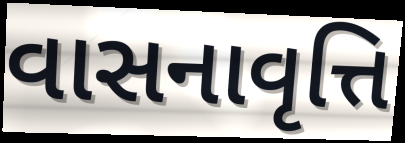
વાસનાવૃત્તિ